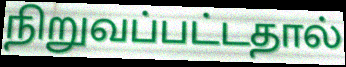
நிறுவப்பட்டதால்